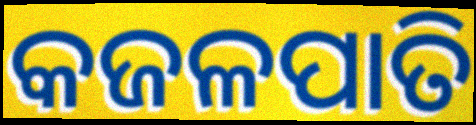
କଜଳପାତି